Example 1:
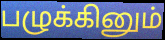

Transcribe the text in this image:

பழுக்கினும்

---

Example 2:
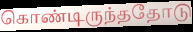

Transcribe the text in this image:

கொண்டிருந்ததோடு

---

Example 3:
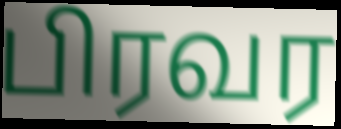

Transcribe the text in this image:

பிரவர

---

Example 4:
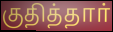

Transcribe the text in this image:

குதித்தார்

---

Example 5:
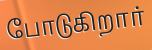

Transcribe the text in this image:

போடுகிறார்